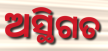
ଅସ୍ଥିଗତ